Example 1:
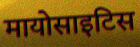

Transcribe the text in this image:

मायोसाइटिस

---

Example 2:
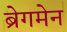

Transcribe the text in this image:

ब्रेगमेन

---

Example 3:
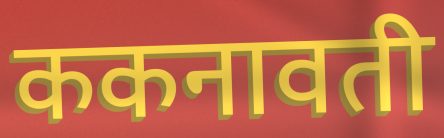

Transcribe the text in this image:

ककनावती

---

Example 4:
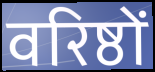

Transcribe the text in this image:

वरिष्ठों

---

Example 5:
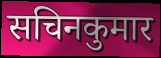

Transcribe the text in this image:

सचिनकुमार